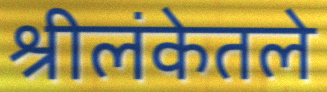
श्रीलंकेतले